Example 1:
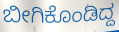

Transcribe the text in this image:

ಬೀಗಿಕೊಂಡಿದ್ದ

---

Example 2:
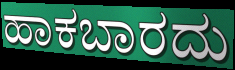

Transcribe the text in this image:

ಹಾಕಬಾರದು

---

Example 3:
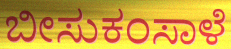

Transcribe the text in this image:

ಬೀಸುಕಂಸಾಳೆ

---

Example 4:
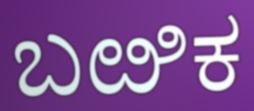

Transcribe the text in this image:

ಬೞಿಕ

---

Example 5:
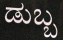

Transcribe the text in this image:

ಡುಬ್ಬ